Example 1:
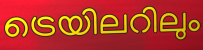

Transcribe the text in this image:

ട്രെയിലറിലും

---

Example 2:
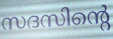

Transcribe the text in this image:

സദസിന്റെ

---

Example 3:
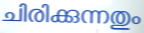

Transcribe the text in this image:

ചിരിക്കുന്നതും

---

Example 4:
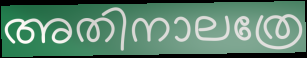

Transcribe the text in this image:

അതിനാലത്രേ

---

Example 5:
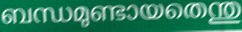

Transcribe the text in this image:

ബന്ധമുണ്ടായതെന്തു